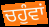
ਚਹੁੰਵਾਂ